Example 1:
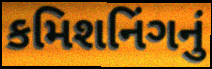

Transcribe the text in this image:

કમિશનિંગનું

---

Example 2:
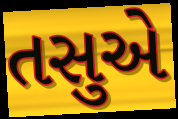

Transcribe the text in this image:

તસુએ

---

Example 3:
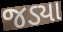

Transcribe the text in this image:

જડ્યા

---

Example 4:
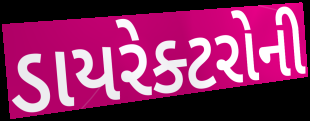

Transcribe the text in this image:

ડાયરેક્ટરોની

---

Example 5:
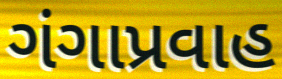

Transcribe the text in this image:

ગંગાપ્રવાહ